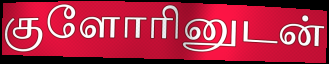
குளோரினுடன்